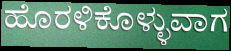
ಹೊರಳಿಕೊಳ್ಳುವಾಗ